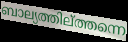
ബാല്യത്തില്ത്തന്നെ